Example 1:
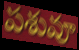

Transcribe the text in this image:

పశువూ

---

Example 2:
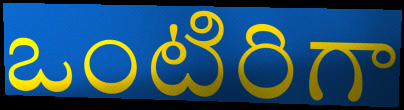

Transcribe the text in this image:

ఒంటిరిగా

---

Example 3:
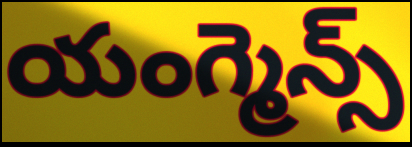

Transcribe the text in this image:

యంగ్మెన్స్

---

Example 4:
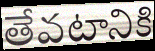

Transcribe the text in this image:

తేవటానికి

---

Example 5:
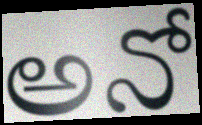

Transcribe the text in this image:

అనో